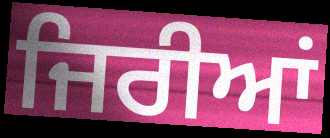
ਜਿਰੀਆਂ